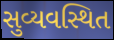
સુવ્યવસ્થિત